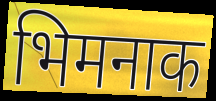
भिमनाक